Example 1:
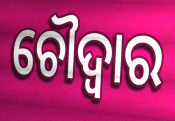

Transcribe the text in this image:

ଚୌଦ୍ଵାର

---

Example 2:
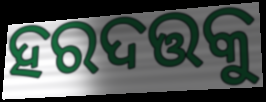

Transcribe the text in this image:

ହରଦତ୍ତକୁ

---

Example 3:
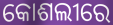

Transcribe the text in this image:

କୋଶଲୀରେ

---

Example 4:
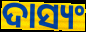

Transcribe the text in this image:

ଦାସ୍ୟଂ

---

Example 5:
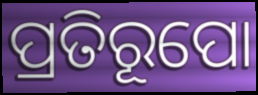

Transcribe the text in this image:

ପ୍ରତିରୂପୋ